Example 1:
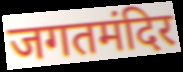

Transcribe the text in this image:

जगतमंदिर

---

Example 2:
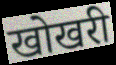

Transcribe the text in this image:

खोखरी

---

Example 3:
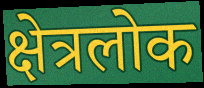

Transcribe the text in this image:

क्षेत्रलोक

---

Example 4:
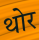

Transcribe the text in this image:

थोर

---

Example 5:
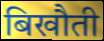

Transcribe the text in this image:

बिखौती